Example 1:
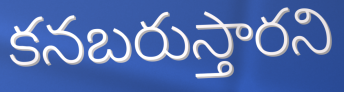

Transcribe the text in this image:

కనబరుస్తారని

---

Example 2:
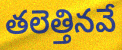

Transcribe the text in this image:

తలెత్తినవే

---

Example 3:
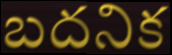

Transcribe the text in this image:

బదనిక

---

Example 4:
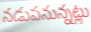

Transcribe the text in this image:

నడుపనున్నట్లు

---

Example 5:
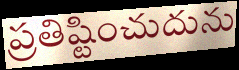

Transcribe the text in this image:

ప్రతిష్టించుదును